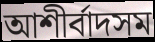
আশীর্বাদসম